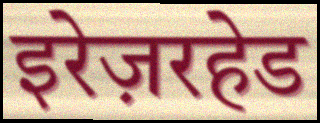
इरेज़रहेड